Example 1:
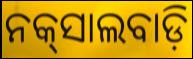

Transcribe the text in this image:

ନକ୍‌ସାଲବାଡ଼ି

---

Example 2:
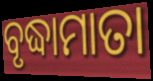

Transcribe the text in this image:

ବୃଦ୍ଧାମାତା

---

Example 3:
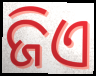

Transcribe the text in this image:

ଜିଏ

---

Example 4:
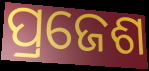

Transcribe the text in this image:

ପ୍ରଜେଶ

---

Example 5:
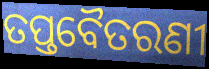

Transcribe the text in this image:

ତପ୍ତବୈତରଣୀ